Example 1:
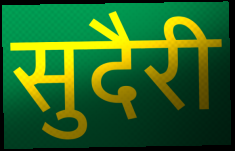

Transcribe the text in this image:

सुदैरी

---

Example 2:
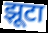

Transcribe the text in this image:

झूटा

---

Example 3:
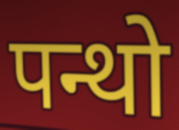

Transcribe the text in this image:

पन्थो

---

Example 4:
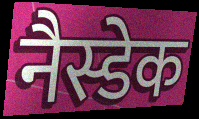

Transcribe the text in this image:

नैस्डेक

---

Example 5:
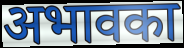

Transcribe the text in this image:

अभावका